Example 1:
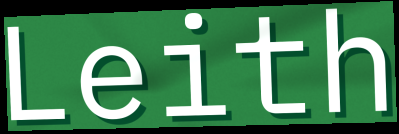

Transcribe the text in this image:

Leith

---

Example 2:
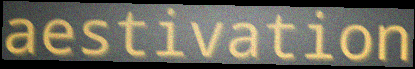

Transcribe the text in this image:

aestivation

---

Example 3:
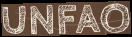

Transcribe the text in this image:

UNFAO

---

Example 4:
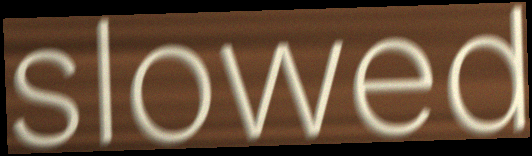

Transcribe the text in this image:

slowed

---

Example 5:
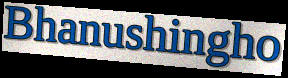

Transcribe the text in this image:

Bhanushingho